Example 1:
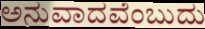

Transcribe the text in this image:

ಅನುವಾದವೆಂಬುದು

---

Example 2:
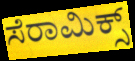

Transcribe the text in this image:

ಸೆರಾಮಿಕ್ಸ್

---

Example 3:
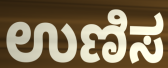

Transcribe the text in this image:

ಉಣಿಸ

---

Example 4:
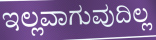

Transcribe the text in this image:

ಇಲ್ಲವಾಗುವುದಿಲ್ಲ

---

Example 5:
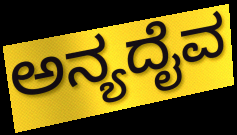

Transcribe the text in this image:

ಅನ್ಯದೈವ